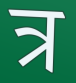
त्र